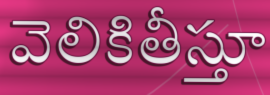
వెలికితీస్తూ